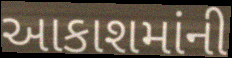
આકાશમાંની